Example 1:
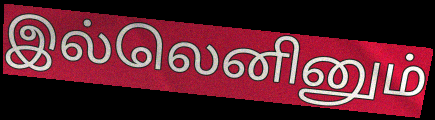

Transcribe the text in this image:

இல்லெனினும்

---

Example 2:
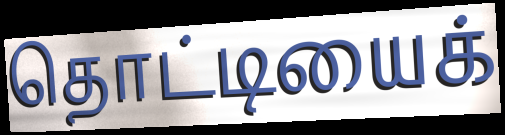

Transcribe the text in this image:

தொட்டியைக்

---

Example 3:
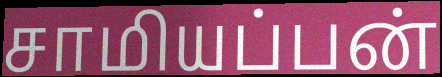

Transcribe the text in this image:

சாமியப்பன்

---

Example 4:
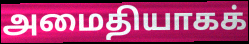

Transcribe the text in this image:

அமைதியாகக்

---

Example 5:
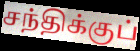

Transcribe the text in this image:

சந்திக்குப்